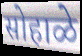
सोहाळे